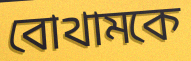
বোথামকে